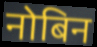
नोबिन